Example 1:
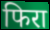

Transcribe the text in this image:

फिरा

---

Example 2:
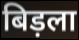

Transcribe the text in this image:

बिड़ला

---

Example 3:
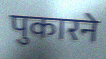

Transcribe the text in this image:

पुकारने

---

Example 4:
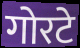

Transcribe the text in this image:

गोरटे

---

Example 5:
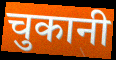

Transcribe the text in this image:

चुकानी